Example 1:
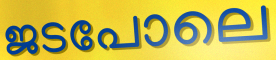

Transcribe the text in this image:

ജടപോലെ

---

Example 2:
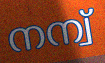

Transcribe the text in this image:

നന്വ്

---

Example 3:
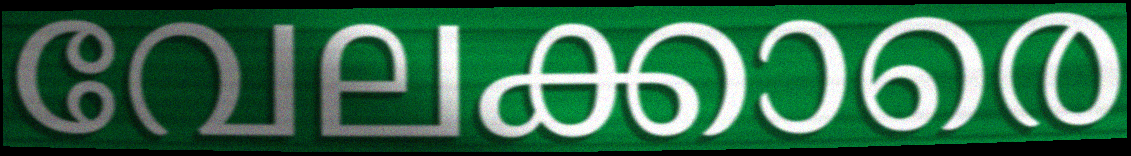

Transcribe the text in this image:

വേലക്കാരെ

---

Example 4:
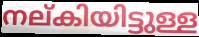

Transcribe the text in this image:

നല്കിയിട്ടുള്ള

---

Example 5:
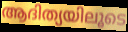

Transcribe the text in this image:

ആദിത്യയിലൂടെ